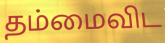
தம்மைவிட